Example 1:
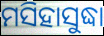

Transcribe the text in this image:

ମସିହାସୁଦ୍ଧା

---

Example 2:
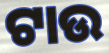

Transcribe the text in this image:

ଟାଉ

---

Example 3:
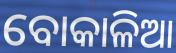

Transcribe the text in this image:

ବୋକାଳିଆ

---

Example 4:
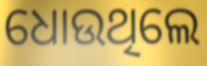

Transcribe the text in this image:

ଧୋଉଥିଲେ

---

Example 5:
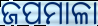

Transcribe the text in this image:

ଜପମାଳା